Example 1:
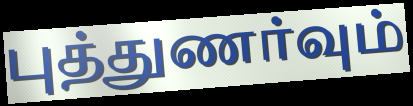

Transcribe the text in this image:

புத்துணர்வும்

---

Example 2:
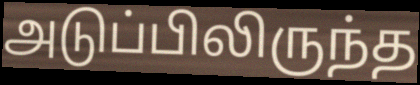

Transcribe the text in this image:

அடுப்பிலிருந்த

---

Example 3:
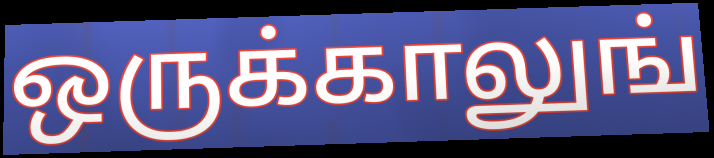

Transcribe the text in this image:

ஒருக்காலுங்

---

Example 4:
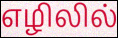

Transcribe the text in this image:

எழிலில்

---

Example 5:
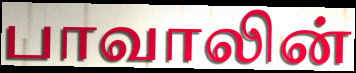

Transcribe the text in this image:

பாவாலின்